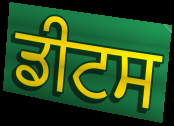
ਡੀਟਸ